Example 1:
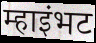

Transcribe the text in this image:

म्हाइंभट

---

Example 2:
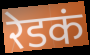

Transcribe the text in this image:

रेडकं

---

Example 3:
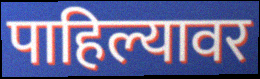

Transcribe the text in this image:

पाहिल्यावर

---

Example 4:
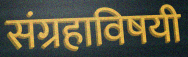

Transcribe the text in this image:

संग्रहाविषयी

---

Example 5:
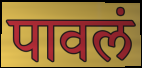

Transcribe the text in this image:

पावलं